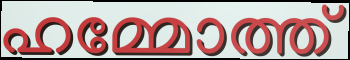
ഹമ്മോത്ത്